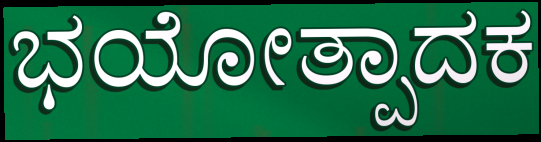
ಭಯೋತ್ಪಾದಕ